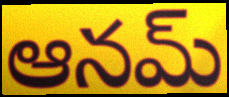
ఆనమ్